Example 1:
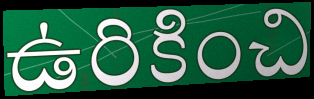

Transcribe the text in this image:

ఉరికించి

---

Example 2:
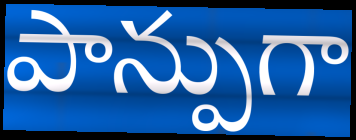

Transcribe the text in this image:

పాన్పుగా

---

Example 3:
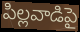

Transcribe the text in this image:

పిల్లవాడిపై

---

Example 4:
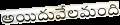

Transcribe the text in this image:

అయిదువేలమంది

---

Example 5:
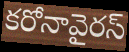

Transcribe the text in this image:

కరోనావైరస్